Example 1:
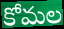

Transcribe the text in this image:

కోమల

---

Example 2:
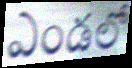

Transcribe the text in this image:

ఎండలో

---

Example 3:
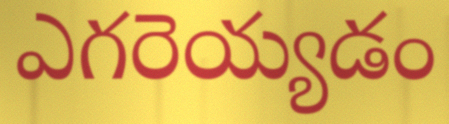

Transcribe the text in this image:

ఎగరెయ్యడం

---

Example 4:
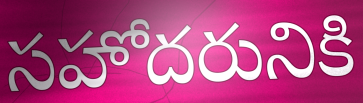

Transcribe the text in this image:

సహోదరునికి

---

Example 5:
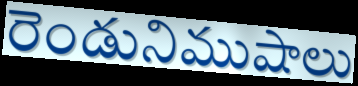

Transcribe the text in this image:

రెండునిముషాలు